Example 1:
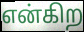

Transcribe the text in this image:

என்கிற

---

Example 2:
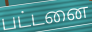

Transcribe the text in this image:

பட்டனை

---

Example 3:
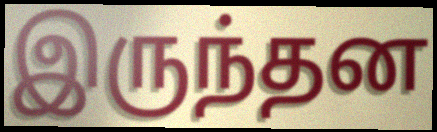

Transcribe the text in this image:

இருந்தன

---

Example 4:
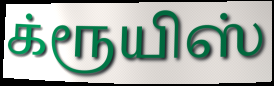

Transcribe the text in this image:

க்ரூயிஸ்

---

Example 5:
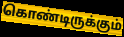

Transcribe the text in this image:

கொண்டிருக்கும்